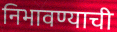
निभावण्याची